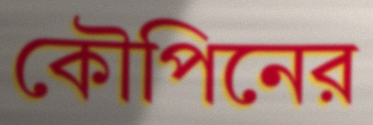
কৌপিনের